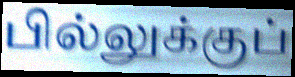
பில்லுக்குப்